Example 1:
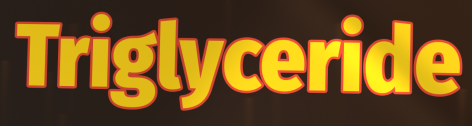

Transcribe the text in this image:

Triglyceride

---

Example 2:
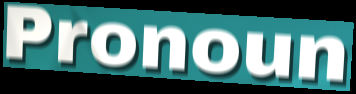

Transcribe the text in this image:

Pronoun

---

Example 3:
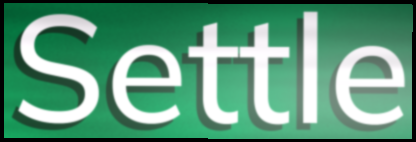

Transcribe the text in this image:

Settle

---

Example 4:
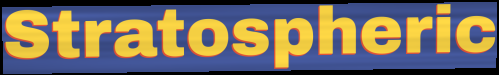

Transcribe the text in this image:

Stratospheric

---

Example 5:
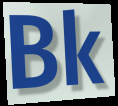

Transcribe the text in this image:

Bk